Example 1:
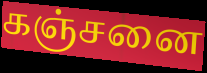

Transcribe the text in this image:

கஞ்சனை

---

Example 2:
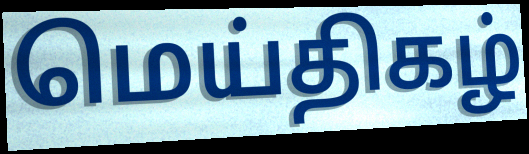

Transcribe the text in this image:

மெய்திகழ்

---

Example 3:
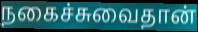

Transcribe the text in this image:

நகைச்சுவைதான்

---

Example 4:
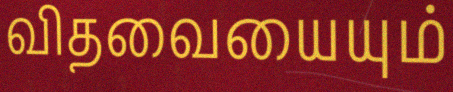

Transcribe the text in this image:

விதவையையும்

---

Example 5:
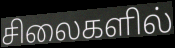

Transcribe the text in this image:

சிலைகளில்